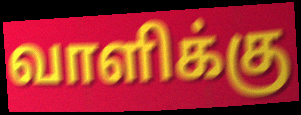
வாளிக்கு